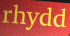
rhydd